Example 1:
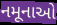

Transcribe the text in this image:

નમૂનાઓ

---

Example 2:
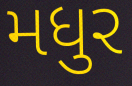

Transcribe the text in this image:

મધુર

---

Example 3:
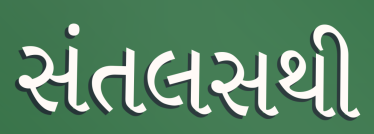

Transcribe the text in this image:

સંતલસથી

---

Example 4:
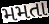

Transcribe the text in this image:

મમતા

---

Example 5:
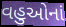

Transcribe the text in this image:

વહુઓનાં